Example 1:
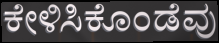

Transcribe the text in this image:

ಕೇಳಿಸಿಕೊಂಡೆವು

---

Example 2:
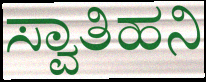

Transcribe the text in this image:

ಸ್ವಾತಿಹನಿ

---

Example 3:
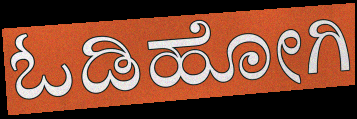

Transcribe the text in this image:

ಓಡಿಹೋಗಿ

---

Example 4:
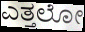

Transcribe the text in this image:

ಎತ್ತಲೋ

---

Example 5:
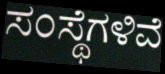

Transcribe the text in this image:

ಸಂಸ್ಥೆಗಳಿವೆ